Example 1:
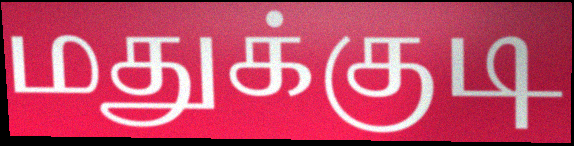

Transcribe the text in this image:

மதுக்குடி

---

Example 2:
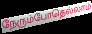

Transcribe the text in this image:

நேரும்போதெல்லாம்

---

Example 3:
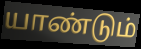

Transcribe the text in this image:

யாண்டும்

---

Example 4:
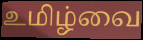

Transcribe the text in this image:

உமிழ்வை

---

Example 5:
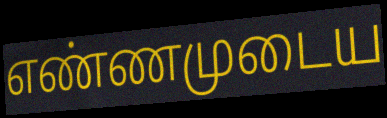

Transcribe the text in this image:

எண்ணமுடைய